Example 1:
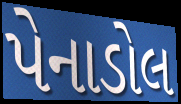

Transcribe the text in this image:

પેનાડોલ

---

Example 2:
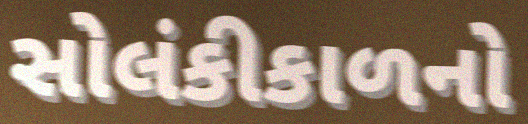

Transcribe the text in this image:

સોલંકીકાળનો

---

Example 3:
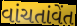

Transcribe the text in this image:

વાંચતાંવેંત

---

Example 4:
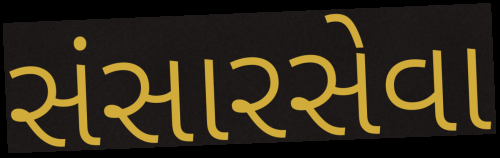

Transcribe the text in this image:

સંસારસેવા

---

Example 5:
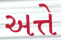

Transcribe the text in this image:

અત્તે